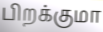
பிறக்குமா